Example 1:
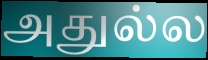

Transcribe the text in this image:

அதுல்ல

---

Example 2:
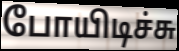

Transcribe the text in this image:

போயிடிச்சு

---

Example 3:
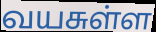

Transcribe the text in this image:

வயசுள்ள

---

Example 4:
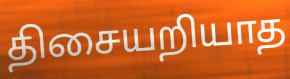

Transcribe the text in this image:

திசையறியாத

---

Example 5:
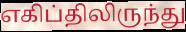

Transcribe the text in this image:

எகிப்திலிருந்து